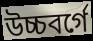
উচ্চবর্গে